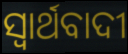
ସ୍ବାର୍ଥବାଦୀ